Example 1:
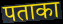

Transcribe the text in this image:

पताका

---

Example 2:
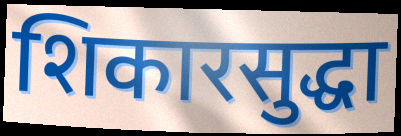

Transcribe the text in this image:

शिकारसुद्धा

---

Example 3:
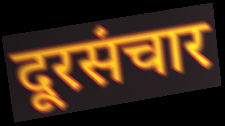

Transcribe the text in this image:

दूरसंचार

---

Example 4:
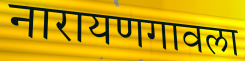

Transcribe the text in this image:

नारायणगावला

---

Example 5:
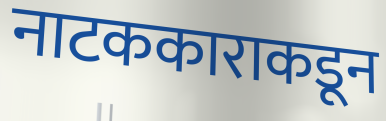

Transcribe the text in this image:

नाटककाराकडून